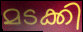
മടക്കി